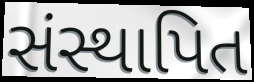
સંસ્થાપિત